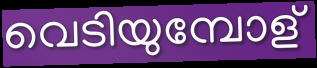
വെടിയുമ്പോള്